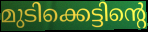
മുടിക്കെട്ടിന്റെ